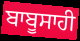
ਬਾਬੂਸਾਹੀ